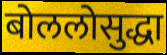
बोललोसुद्धा